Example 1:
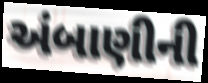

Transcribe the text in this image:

અંબાણીની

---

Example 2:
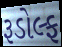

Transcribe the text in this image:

રૂડોલ્ફ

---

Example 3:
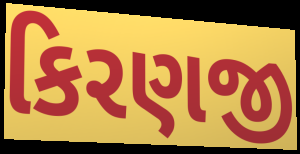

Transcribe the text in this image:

કિરણજી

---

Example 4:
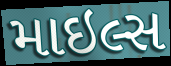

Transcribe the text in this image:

માઇલ્સ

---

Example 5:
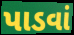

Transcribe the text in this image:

પાડવાં